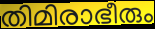
തിമിരാഭീരും